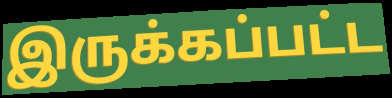
இருக்கப்பட்ட